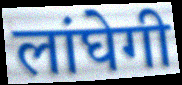
लांघेगी